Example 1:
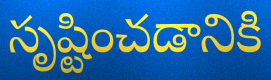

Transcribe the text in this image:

సృష్టించడానికి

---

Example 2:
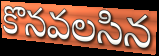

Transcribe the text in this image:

కొనవలసిన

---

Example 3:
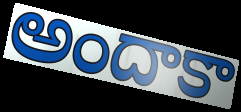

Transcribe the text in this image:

అందాకా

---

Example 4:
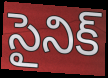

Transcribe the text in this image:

సైనిక్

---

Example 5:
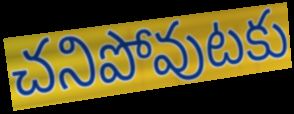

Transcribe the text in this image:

చనిపోవుటకు